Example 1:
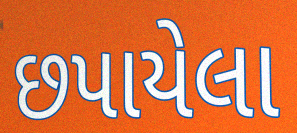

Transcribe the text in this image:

છપાયેલા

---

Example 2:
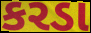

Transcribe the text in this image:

કરડા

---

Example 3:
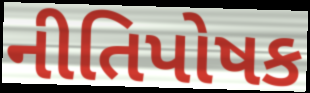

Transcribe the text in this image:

નીતિપોષક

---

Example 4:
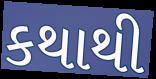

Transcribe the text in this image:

કથાથી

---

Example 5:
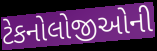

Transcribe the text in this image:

ટેકનોલોજીઓની